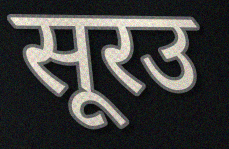
सूरउ